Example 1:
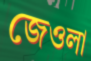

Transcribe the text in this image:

জেওলা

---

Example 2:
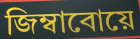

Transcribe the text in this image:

জিম্বাবোয়ে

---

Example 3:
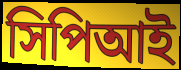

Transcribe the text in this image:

সিপিআই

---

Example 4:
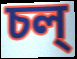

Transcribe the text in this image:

চল্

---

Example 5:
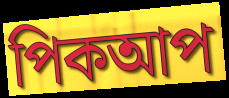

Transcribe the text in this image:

পিকআপ